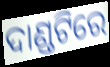
ଦାଣ୍ଡଟିରେ